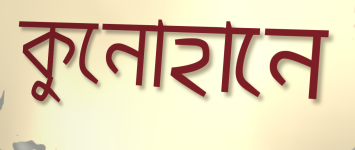
কুনোহানে